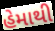
હેમાથી